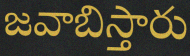
జవాబిస్తారు